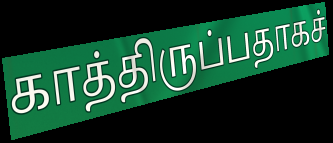
காத்திருப்பதாகச்